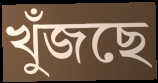
খুঁজছে